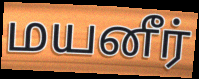
மயனீர்